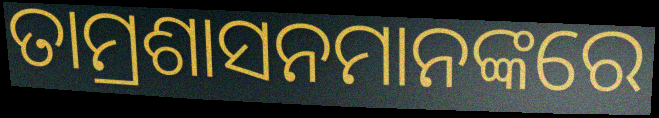
ତାମ୍ରଶାସନମାନଙ୍କରେ